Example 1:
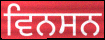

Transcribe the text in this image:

ਵਿਨਸਨ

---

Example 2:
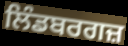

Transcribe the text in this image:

ਲਿੰਡਬਰਗਜ਼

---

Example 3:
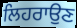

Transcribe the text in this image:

ਲਿਹਰਾਉਣ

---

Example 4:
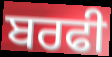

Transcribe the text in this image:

ਬਰਫੀ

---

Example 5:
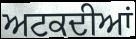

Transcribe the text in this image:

ਅਟਕਦੀਆਂ